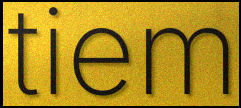
tiem